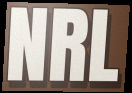
NRL